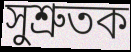
সুশ্ৰুতক